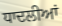
ਧਾਦਲੀਆਂ